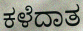
ಕಳೆದಾತ